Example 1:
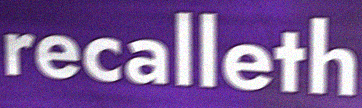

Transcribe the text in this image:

recalleth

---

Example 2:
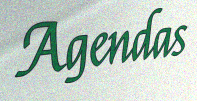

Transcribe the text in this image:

Agendas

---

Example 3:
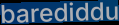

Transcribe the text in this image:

barediddu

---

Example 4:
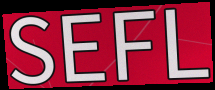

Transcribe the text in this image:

SEFL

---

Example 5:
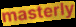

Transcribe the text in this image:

masterly